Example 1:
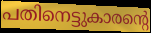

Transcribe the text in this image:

പതിനെട്ടുകാരന്റെ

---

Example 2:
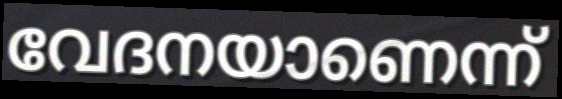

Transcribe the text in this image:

വേദനയാണെന്ന്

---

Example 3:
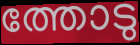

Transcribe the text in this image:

ത്തോടു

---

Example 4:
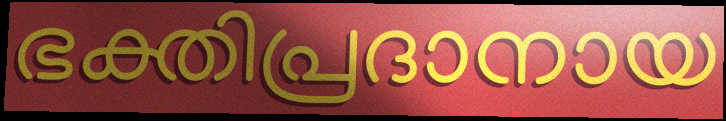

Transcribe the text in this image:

ഭക്തിപ്രദാനായ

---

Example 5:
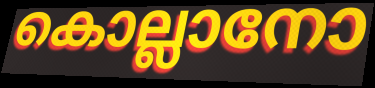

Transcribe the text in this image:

കൊല്ലാനോ